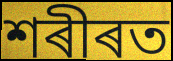
শৰীৰত